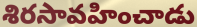
శిరసావహించాడు